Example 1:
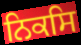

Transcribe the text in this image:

ਨਿਕਸਿ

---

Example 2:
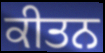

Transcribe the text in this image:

ਕੀਤਨ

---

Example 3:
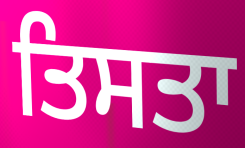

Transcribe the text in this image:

ਤਿਸਤਾ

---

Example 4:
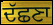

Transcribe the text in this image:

ਦੱਛਣਾ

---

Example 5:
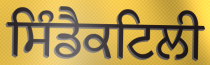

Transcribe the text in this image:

ਸਿੰਡੈਕਟਿਲੀ